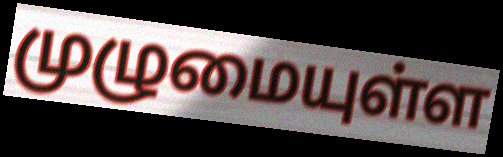
முழுமையுள்ள